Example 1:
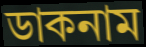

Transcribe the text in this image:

ডাকনাম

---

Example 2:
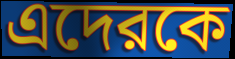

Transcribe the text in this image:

এদেরকে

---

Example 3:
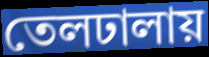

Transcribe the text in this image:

তেলঢালায়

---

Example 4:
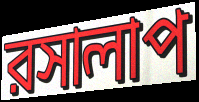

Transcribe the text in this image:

রসালাপ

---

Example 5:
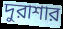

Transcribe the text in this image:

দুরাশার